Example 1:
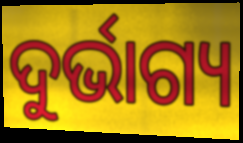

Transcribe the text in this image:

ଦୁର୍ଭାଗ୍ୟ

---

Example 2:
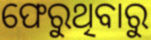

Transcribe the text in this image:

ଫେରୁଥିବାରୁ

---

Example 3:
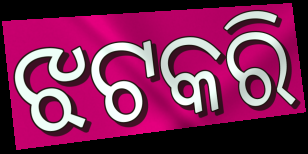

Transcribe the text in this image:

ଝଟକରି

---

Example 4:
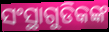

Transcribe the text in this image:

ସଂସ୍ଥାଗୁଡିକଙ୍କ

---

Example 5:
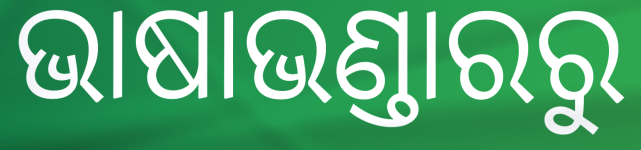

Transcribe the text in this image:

ଭାଷାଭଣ୍ଡାରରୁ